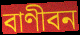
বাণীবন